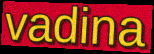
vadina